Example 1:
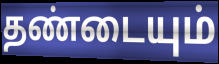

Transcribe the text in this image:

தண்டையும்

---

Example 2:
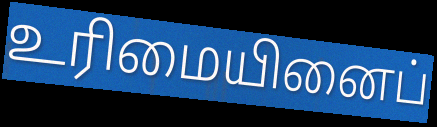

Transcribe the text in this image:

உரிமையினைப்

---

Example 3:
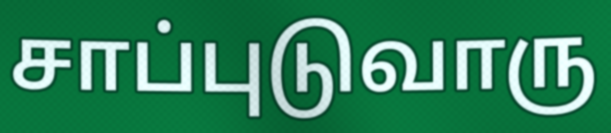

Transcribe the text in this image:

சாப்புடுவாரு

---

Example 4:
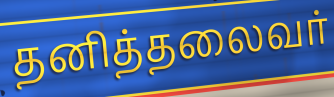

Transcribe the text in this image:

தனித்தலைவர்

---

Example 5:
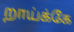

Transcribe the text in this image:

றாய்க்கே